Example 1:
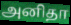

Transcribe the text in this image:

அனிதா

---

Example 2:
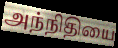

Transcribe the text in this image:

அந்நிதியை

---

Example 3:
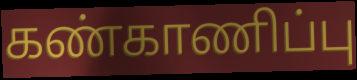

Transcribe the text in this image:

கண்காணிப்பு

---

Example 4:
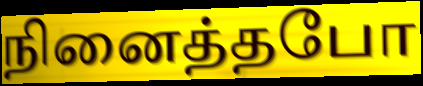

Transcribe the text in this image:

நினைத்தபோ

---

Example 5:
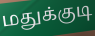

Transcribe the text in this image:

மதுக்குடி